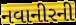
નવાનીરની